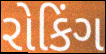
રોકિંગ